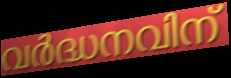
വർദ്ധനവിന്